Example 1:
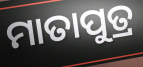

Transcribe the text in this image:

ମାତାପୁତ୍ର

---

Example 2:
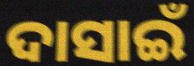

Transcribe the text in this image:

ଦାସାଇଁ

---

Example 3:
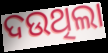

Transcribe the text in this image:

ଦଉଥିଲା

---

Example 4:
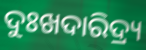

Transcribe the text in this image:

ଦୁଃଖଦାରିଦ୍ର୍ୟ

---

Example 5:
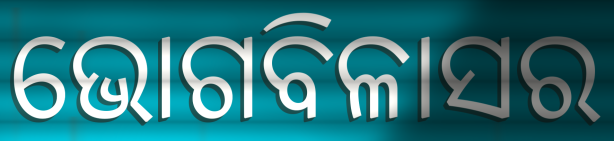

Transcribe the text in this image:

ଭୋଗବିଳାସର